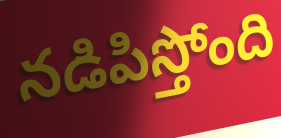
నడిపిస్తోంది